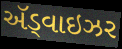
ઍડ્વાઇઝર